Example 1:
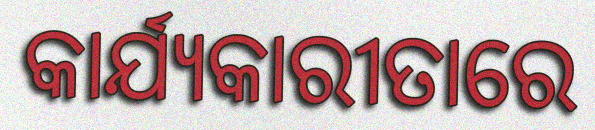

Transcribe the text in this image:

କାର୍ଯ୍ୟକାରୀତାରେ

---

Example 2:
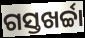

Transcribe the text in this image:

ଗସ୍ତଖର୍ଚ୍ଚା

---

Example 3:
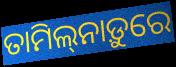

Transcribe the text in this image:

ତାମିଲ୍‌ନାଡ଼ୁରେ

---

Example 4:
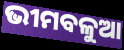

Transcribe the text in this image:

ଭୀମବଳୁଆ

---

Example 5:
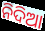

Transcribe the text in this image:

ନିଦିଆ